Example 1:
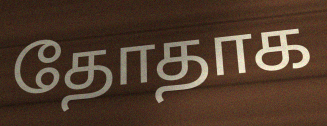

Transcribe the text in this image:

தோதாக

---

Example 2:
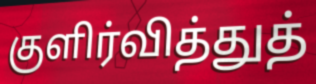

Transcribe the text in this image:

குளிர்வித்துத்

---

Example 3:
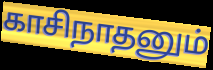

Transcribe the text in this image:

காசிநாதனும்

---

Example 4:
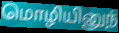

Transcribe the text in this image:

மொழியினுந்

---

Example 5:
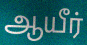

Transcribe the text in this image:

ஆயீர்